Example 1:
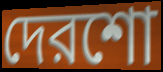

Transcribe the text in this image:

দেরশো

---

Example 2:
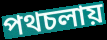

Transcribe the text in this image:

পথচলায়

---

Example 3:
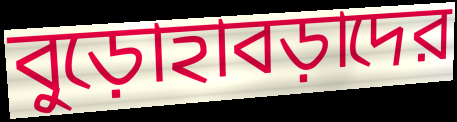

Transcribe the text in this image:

বুড়োহাবড়াদের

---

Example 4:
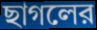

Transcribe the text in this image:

ছাগলের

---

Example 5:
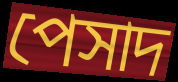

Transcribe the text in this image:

পেসাদ